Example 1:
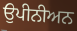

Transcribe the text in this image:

ਉਪੀਨੀਅਨ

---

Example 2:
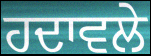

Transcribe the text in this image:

ਹਦਾਵਲੇ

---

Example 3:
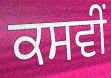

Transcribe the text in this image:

ਕਸਵੀਂ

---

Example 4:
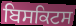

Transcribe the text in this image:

ਬਿਸਕਿਟਸ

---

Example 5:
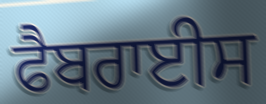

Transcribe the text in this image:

ਫੈਬਰਾਈਸ